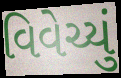
વિવેચ્યું